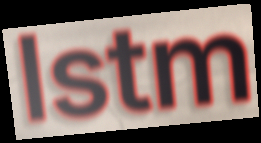
lstm